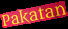
Pakatan